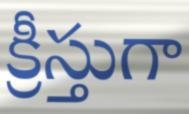
క్రీస్తుగా